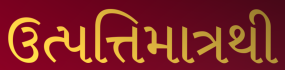
ઉત્પત્તિમાત્રથી